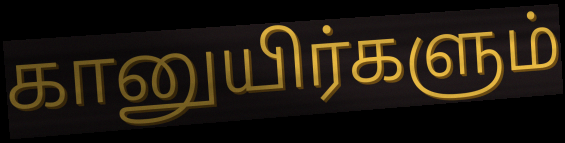
கானுயிர்களும்